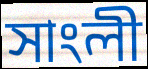
সাংলী